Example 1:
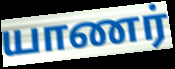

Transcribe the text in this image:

யாணர்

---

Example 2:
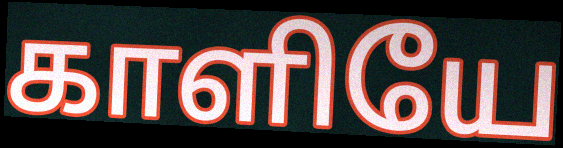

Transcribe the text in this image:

காளியே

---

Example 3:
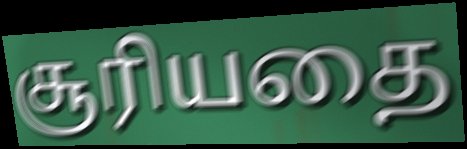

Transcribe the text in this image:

சூரியதை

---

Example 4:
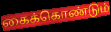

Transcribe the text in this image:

கைக்கொண்டும்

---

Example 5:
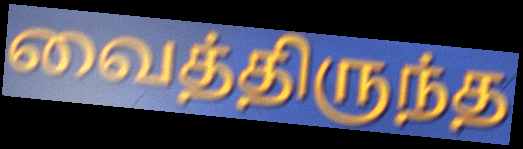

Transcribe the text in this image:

வைத்திருந்த